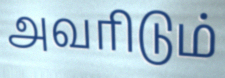
அவரிடும்